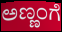
ಅಣ್ಣಂಗೆ